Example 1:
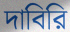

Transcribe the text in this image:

দাবিরি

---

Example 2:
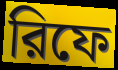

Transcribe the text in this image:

রিফে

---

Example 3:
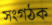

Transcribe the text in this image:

সংগঠক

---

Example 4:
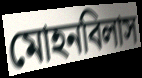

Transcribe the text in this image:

মোহনবিলাস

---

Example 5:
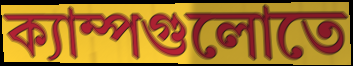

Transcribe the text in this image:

ক্যাম্পগুলোতে